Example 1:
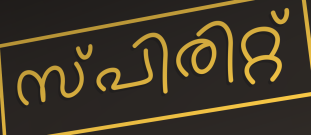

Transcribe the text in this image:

സ്പിരിറ്റ്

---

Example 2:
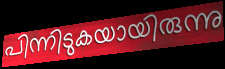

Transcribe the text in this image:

പിന്നിടുകയായിരുന്നു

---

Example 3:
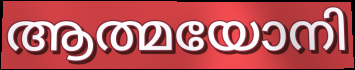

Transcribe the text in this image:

ആത്മയോനി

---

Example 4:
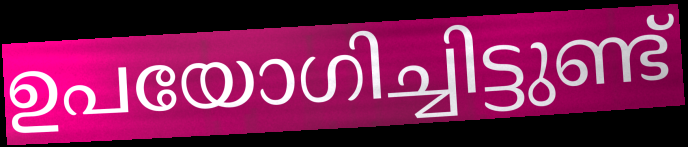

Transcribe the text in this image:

ഉപയോഗിച്ചിട്ടുണ്ട്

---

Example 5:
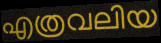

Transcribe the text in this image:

എത്രവലിയ